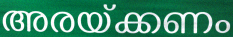
അരയ്‌ക്കണം